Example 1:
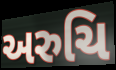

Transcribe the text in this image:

અરુચિ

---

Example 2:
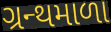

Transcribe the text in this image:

ગ્રન્થમાળા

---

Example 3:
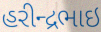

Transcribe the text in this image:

હરીન્દ્રભાઇ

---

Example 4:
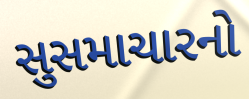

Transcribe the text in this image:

સુસમાચારનો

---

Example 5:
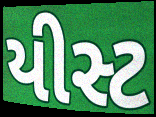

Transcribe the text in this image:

યીસ્ટ